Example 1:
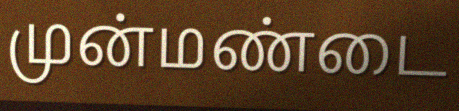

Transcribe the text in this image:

முன்மண்டை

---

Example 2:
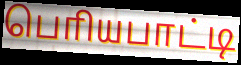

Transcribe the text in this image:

பெரியபாட்டி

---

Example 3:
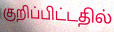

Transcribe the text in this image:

குறிப்பிட்டதில்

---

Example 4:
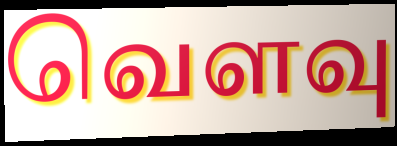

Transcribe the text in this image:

வெளவு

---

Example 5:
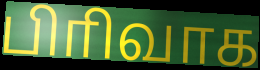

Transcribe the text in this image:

பிரிவாக